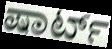
ಷಾರ್ಟ್